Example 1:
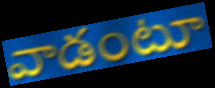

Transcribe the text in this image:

వాడంటూ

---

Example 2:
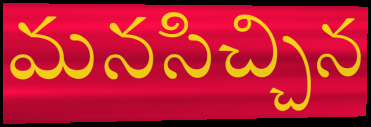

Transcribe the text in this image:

మనసిచ్చిన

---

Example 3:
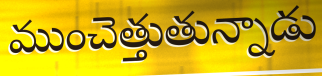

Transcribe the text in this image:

ముంచెత్తుతున్నాడు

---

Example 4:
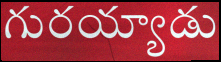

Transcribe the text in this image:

గురయ్యాడు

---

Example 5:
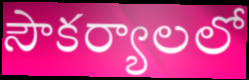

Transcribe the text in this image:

సౌకర్యాలలో